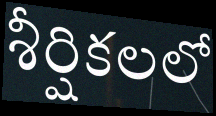
శీర్షికలలో